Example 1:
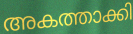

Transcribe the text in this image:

അകത്താക്കി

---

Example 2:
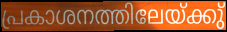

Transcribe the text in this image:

പ്രകാശനത്തിലേയ്ക്കു്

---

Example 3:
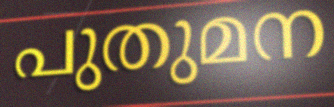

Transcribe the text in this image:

പുതുമന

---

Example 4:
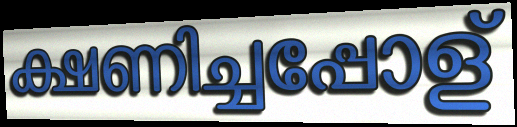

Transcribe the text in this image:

ക്ഷണിച്ചപ്പോള്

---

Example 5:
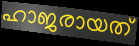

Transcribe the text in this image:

ഹാജരായത്